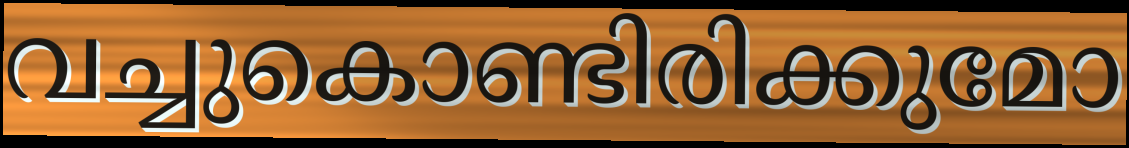
വച്ചുകൊണ്ടിരിക്കുമോ